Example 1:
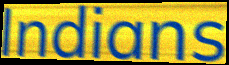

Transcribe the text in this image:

Indians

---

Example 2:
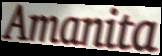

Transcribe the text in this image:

Amanita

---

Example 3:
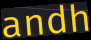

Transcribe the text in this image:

andh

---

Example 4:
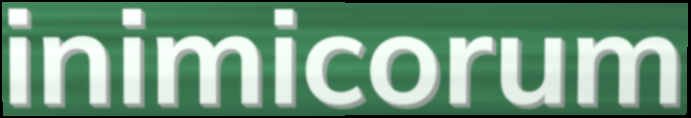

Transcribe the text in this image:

inimicorum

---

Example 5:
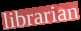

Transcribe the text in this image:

librarian